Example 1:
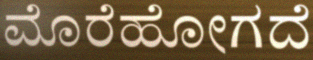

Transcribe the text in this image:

ಮೊರೆಹೋಗದೆ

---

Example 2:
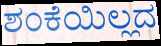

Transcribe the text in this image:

ಶಂಕೆಯಿಲ್ಲದ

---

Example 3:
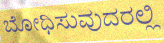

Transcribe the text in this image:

ಬೋಧಿಸುವುದರಲ್ಲಿ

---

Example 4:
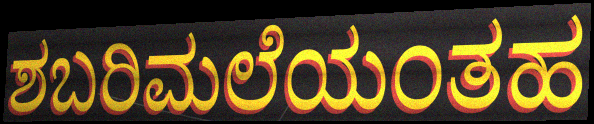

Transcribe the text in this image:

ಶಬರಿಮಲೆಯಂತಹ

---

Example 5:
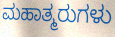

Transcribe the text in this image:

ಮಹಾತ್ಮರುಗಳು